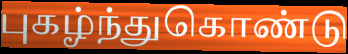
புகழ்ந்துகொண்டு